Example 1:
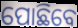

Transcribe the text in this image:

ପୋଛିବେ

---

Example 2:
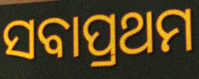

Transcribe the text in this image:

ସବାପ୍ରଥମ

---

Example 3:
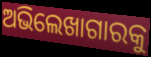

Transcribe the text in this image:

ଅଭିଲେଖାଗାରକୁ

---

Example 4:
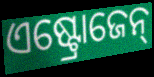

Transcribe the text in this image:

ଏଷ୍ଟ୍ରୋଜେନ୍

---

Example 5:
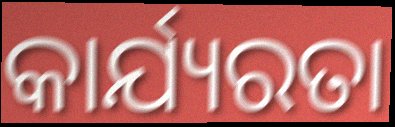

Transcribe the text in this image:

କାର୍ଯ୍ୟରତା